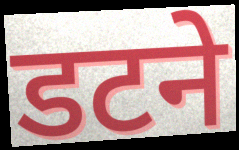
डटने